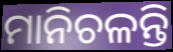
ମାନିଚଳନ୍ତି